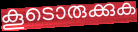
കൂടൊരുക്കുക